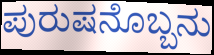
ಪುರುಷನೊಬ್ಬನು